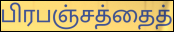
பிரபஞ்சத்தைத்